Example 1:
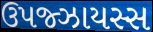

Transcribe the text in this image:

ઉપજ્ઝાયસ્સ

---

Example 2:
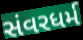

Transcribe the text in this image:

સંવરધર્મ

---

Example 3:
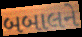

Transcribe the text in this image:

બબાલને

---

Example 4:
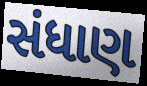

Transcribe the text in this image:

સંધાણ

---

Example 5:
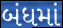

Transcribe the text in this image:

બંધમાં